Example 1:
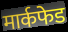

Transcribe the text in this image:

मार्कफेड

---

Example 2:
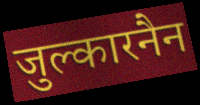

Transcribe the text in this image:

जुल्कारनैन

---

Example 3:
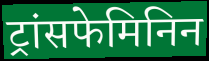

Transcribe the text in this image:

ट्रांसफेमिनिन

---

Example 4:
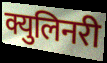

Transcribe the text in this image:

क्युलिनरी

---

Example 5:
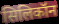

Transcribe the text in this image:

सिलिकॉन